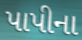
પાપીના